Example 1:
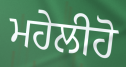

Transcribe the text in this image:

ਮਹੇਲੀਹੋ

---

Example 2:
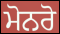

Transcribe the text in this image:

ਮੋਨਰੋ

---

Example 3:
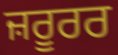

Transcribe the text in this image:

ਜ਼ਰੂਰਰ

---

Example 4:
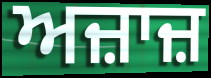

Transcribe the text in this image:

ਅਜ਼ਾਜ਼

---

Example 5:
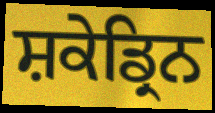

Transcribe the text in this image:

ਸ਼ਕੇਡ੍ਰਿਨ